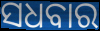
ସଧବାର